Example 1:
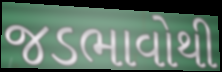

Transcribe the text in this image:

જડભાવોથી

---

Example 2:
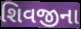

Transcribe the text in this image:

શિવજીના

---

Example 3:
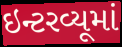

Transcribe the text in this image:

ઇન્ટરવ્યૂમાં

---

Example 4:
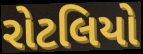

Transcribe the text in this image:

રોટલિયો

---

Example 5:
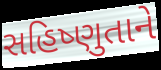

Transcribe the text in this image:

સહિષ્ણુતાને